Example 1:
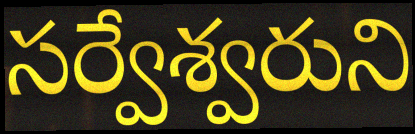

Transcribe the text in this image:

సర్వేశ్వరుని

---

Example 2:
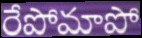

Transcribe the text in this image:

రేపోమాపో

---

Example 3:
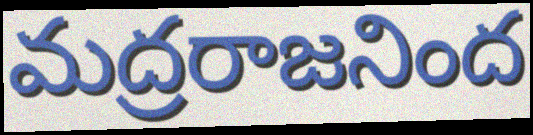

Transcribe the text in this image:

మద్రరాజనింద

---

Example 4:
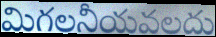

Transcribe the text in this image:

మిగలనీయవలదు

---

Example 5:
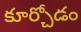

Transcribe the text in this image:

కూర్చోడం